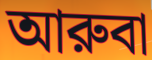
আরুবা